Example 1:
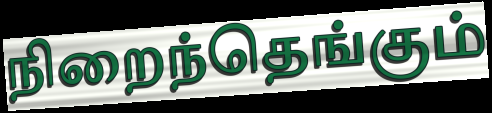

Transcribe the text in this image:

நிறைந்தெங்கும்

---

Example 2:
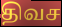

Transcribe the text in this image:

திவச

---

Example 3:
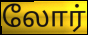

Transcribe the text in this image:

லோர்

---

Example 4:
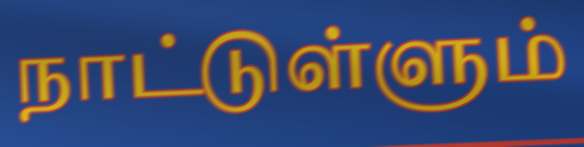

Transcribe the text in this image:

நாட்டுள்ளும்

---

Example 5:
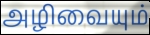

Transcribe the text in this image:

அழிவையும்